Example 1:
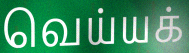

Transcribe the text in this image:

வெய்யக்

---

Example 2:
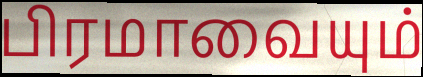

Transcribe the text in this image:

பிரமாவையும்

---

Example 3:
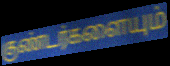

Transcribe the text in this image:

குண்டர்களையும்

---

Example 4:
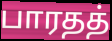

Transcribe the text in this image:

பாரதத்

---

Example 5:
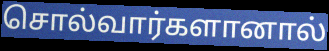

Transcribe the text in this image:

சொல்வார்களானால்